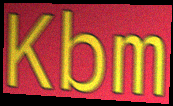
Kbm